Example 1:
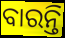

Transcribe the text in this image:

ବାରନ୍ତି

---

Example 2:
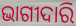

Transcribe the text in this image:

ଭାଗୀଦାରି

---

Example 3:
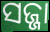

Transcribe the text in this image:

ସଜ୍ଜା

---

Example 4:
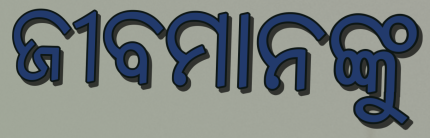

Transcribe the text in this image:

ଜୀବମାନଙ୍କୁ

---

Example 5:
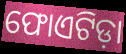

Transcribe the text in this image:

ଫୋଏଟିଡ଼ା